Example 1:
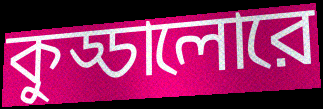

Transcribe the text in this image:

কুড্ডালোরে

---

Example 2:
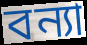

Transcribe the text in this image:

বন্যা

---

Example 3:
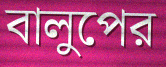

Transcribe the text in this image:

বালুপের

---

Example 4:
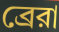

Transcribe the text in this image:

ব্রেরা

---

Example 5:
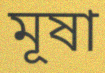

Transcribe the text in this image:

মূষা